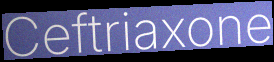
Ceftriaxone